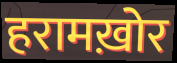
हरामख़ोर